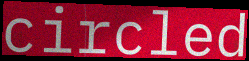
circled